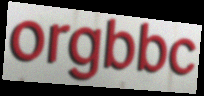
orgbbc